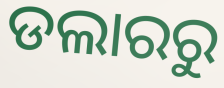
ଡଲାରରୁ